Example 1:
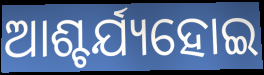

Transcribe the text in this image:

ଆଶ୍ଚର୍ଯ୍ୟହୋଇ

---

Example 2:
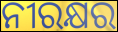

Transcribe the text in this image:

ନୀରକ୍ଷର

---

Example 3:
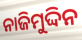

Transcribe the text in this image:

ନାଜିମୁଦ୍ଦିନ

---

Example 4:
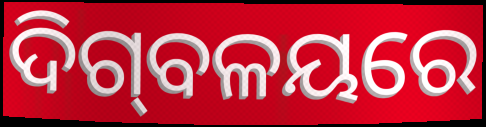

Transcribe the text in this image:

ଦିଗ୍‌ବଳୟରେ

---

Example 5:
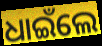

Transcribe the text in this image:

ଧାଇଁଲେ